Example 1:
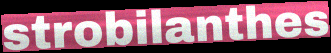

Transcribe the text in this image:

strobilanthes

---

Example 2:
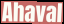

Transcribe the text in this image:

Ahaval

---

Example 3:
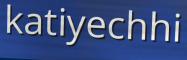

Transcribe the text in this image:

katiyechhi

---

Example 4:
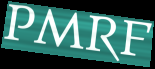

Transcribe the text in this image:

PMRF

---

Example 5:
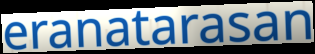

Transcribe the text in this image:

eranatarasan